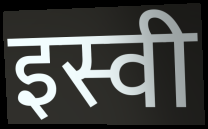
इस्वी